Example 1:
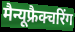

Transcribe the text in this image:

मैन्यूफ्रैक्चरिंग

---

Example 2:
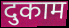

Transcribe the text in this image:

दुकाम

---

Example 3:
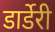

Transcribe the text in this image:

डार्डेरी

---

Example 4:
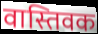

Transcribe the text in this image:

वास्तिवक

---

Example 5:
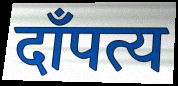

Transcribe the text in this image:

दाँपत्य